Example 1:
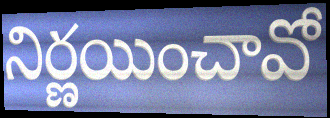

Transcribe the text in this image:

నిర్ణయించావో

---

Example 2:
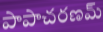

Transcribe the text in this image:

పాపాచరణమ్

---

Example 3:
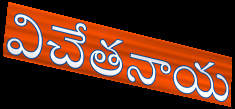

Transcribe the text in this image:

విచేతనాయ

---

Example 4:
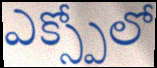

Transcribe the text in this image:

ఎక్స్పోలో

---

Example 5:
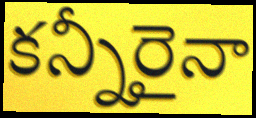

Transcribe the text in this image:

కన్నీరైనా